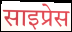
साइप्रेस